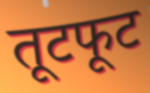
तूटफूट